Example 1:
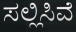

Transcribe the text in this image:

ಸಲ್ಲಿಸಿವೆ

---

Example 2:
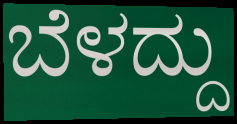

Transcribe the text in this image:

ಬೆಳದ್ದು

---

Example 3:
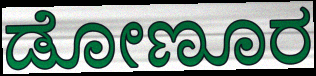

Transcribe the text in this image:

ಡೋಣೂರ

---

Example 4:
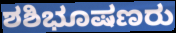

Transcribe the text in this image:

ಶಶಿಭೂಷಣರು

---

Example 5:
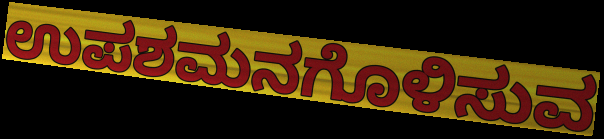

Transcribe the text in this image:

ಉಪಶಮನಗೊಳಿಸುವ